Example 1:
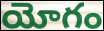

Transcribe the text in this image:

యోగం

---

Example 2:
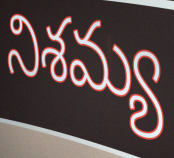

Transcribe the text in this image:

నిశమ్య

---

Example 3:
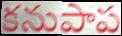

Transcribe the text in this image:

కనుపాప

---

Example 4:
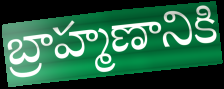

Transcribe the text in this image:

బ్రాహ్మణానికి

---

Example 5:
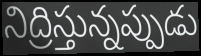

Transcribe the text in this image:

నిద్రిస్తున్నప్పుడు